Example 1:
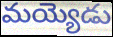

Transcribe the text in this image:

మయ్యెడు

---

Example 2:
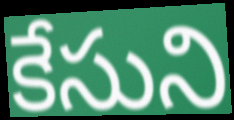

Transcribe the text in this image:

కేసుని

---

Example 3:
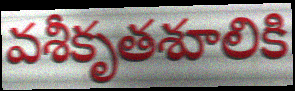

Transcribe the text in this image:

వశీకృతశూలికి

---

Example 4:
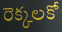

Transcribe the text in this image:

రెక్కలకో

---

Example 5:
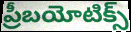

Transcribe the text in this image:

ప్రీబయోటిక్స్